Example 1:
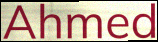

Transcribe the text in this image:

Ahmed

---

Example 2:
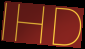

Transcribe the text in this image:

IHD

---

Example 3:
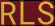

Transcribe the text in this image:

RLS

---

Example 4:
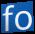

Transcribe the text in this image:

fo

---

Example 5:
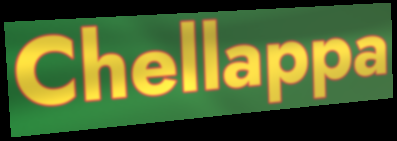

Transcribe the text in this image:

Chellappa